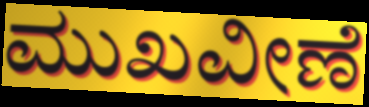
ಮುಖವೀಣೆ